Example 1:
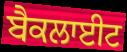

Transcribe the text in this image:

ਬੈਕਲਾਈਟ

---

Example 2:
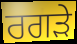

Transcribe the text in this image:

ਰਗੜੇ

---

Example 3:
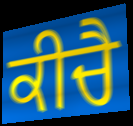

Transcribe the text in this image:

ਕੀਚੈ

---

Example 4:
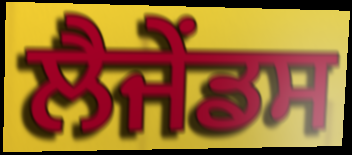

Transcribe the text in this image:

ਲੈਜੇਂਡਸ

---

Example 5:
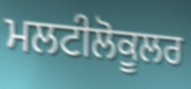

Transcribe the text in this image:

ਮਲਟੀਲੋਕੂਲਰ